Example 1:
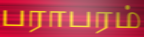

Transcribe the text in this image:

பராபரம்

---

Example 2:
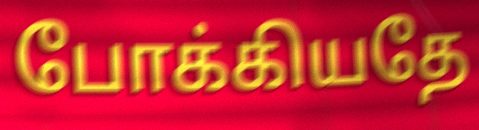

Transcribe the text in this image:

போக்கியதே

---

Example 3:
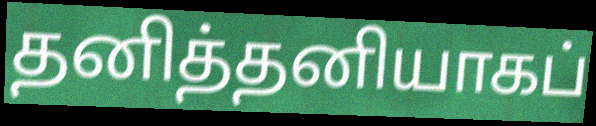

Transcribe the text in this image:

தனித்தனியாகப்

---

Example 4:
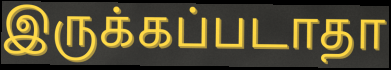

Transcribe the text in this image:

இருக்கப்படாதா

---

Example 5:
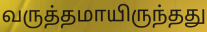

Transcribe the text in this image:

வருத்தமாயிருந்தது